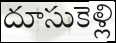
దూసుకెళ్లి